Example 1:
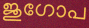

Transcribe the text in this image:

ജുഗോപ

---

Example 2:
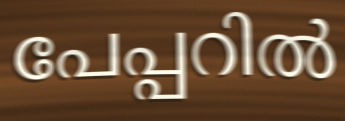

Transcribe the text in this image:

പേപ്പറിൽ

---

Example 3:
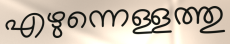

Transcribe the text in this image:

എഴുന്നെള്ളത്തു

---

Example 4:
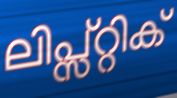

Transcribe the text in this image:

ലിപ്സ്റ്റിക്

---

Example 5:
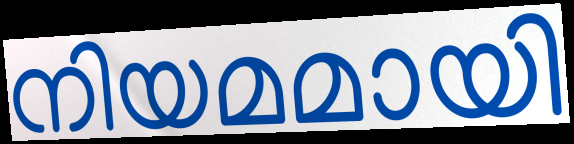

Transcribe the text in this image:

നിയമമായി